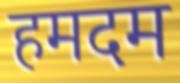
हमदम